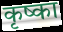
कृष्का